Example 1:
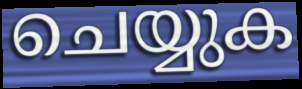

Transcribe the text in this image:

ചെയ്യുക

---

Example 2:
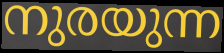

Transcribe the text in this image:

നുരയുന്ന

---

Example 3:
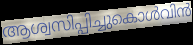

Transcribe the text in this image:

ആശ്വസിപ്പിച്ചുകൊൾവിൻ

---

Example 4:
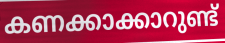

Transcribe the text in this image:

കണക്കാക്കാറുണ്ട്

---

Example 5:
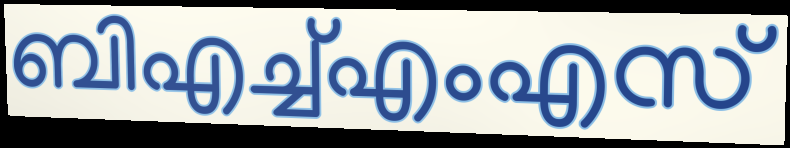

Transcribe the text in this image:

ബിഎച്ച്എംഎസ്